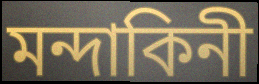
মন্দাকিনী